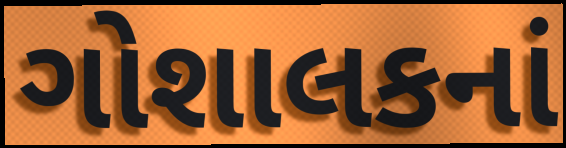
ગોશાલકનાં